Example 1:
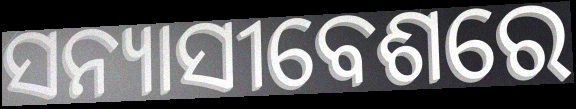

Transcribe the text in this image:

ସନ୍ୟାସୀବେଶରେ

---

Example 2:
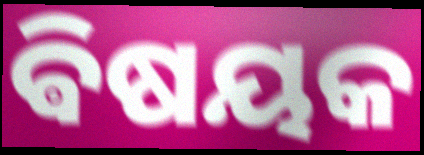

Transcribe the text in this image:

ଵିଷୟକ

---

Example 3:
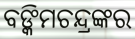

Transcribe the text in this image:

ବଙ୍କିମଚନ୍ଦ୍ରଙ୍କର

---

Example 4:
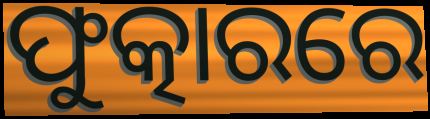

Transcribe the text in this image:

ଫୁତ୍କାରରେ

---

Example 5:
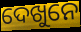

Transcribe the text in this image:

ଦେଖୁନେ